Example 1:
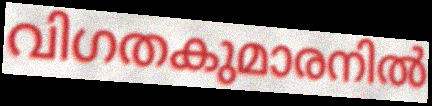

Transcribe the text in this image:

വിഗതകുമാരനിൽ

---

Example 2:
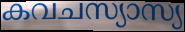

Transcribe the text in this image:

കവചസ്യാസ്യ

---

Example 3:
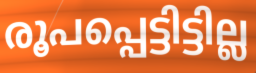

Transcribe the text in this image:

രൂപപ്പെട്ടിട്ടില്ല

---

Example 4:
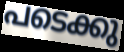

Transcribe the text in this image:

പടെക്കു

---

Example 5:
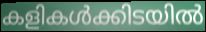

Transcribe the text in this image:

കളികൾക്കിടയിൽ